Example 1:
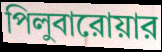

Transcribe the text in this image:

পিলুবারোয়ার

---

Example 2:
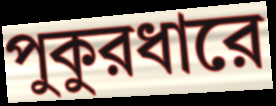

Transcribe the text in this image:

পুকুরধারে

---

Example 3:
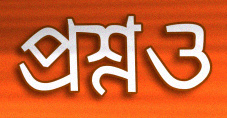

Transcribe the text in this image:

প্রশ্নও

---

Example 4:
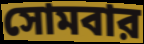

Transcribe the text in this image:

সোমবার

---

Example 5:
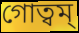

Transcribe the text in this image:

গোত্বম্